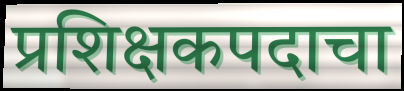
प्रशिक्षकपदाचा